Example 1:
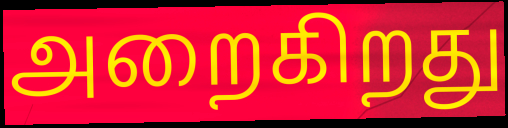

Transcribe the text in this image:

அறைகிறது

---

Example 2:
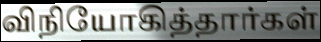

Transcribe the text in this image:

விநியோகித்தார்கள்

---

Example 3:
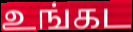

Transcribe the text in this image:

உங்கட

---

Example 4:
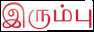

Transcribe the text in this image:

இரும்பு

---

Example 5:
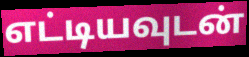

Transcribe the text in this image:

எட்டியவுடன்